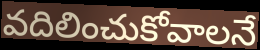
వదిలించుకోవాలనే